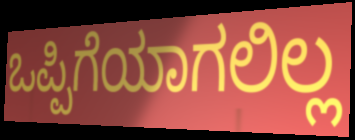
ಒಪ್ಪಿಗೆಯಾಗಲಿಲ್ಲ